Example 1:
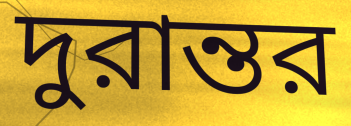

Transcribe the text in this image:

দুরান্তর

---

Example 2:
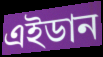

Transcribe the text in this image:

এইডান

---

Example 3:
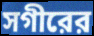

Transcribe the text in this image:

সগীরের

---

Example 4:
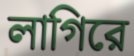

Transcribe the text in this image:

লাগিরে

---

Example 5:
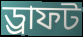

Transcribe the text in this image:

ড্রাফট